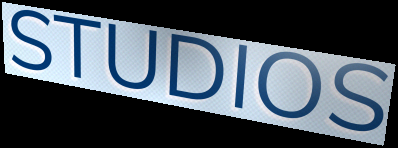
STUDIOS